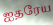
ஐதரேய